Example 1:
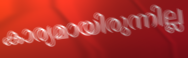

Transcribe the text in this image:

കാര്യമായിരുന്നില്ല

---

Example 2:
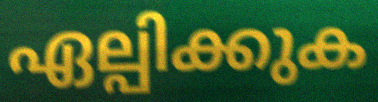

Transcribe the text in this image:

ഏല്പിക്കുക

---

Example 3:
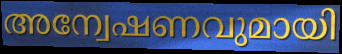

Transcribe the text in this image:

അന്വേഷണവുമായി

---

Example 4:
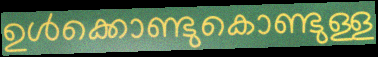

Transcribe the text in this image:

ഉൾക്കൊണ്ടുകൊണ്ടുള്ള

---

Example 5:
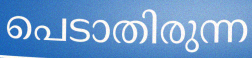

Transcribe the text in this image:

പെടാതിരുന്ന